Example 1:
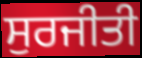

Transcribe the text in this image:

ਸੁਰਜੀਤੀ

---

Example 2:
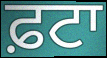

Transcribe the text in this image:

ਫ਼ਟਾ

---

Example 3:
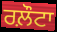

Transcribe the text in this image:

ਰਲ਼ੌਟਾ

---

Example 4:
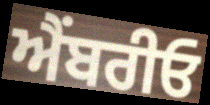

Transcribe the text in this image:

ਐੰਬਰੀਓ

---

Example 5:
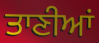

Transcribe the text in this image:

ਤਾਣੀਆਂ